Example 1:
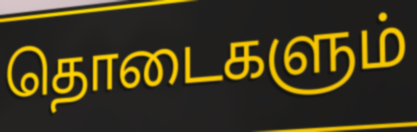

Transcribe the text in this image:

தொடைகளும்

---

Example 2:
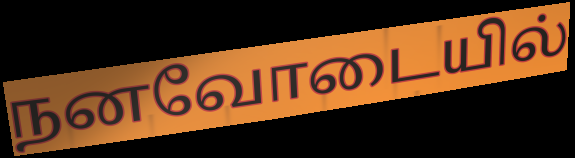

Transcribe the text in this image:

நனவோடையில்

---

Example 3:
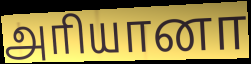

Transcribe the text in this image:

அரியானா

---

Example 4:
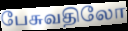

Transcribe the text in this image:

பேசுவதிலோ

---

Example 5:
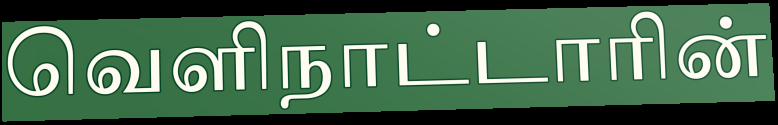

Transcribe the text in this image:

வெளிநாட்டாரின்